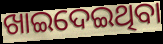
ଖାଇଦେଇଥିବା